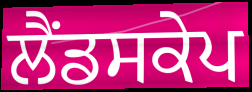
ਲੈਂਡਸਕੇਪ